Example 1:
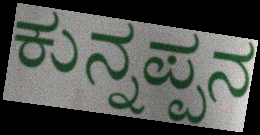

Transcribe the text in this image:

ಕುನ್ನಪ್ಪನ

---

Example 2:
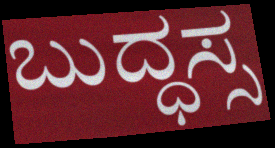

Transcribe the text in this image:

ಬುದ್ಧಸ್ಸ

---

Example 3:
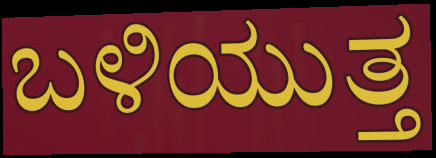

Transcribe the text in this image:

ಬಳಿಯುತ್ತ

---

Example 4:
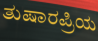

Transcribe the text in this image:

ತುಷಾರಪ್ರಿಯ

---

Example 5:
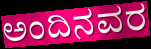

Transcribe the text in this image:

ಅಂದಿನವರ